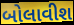
બોલાવીશ